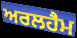
ਅਰਲਹੈਮ